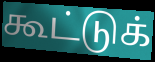
கூட்டுக்